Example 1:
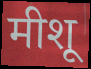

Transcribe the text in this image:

मीशू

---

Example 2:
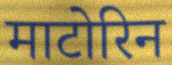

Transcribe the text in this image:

माटोरिन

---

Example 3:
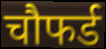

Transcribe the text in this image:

चौफर्ड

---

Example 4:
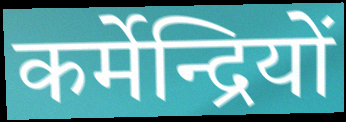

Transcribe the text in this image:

कर्मेन्द्रियों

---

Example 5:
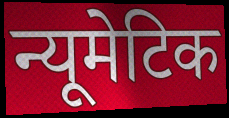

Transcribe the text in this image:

न्यूमेटिक